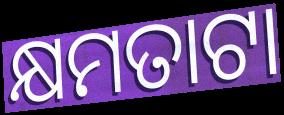
କ୍ଷମତାଟା